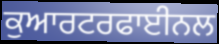
ਕੁਆਰਟਰਫਾਈਨਲ